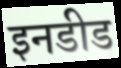
इनडीड